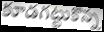
కూడగట్టుకొన్న